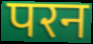
परन